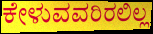
ಕೇಳುವವರಿರಲಿಲ್ಲ